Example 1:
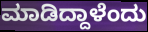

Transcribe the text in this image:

ಮಾಡಿದ್ದಾಳೆಂದು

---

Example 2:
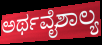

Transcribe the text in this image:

ಅರ್ಥವೈಶಾಲ್ಯ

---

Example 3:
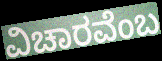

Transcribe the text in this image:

ವಿಚಾರವೆಂಬ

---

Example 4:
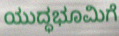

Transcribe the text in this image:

ಯುದ್ಧಭೂಮಿಗೆ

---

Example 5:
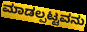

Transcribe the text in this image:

ಮಾಡಲ್ಪಟ್ಟವನು